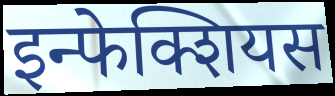
इन्फेक्शियस